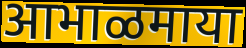
आभाळमाया